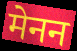
मेनन